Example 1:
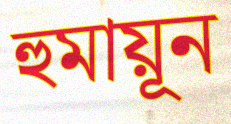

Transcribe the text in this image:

হুমায়ূন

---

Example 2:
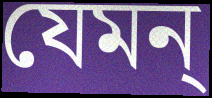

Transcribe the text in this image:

যেমন্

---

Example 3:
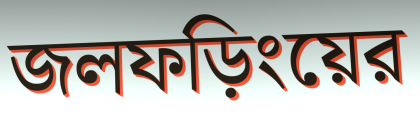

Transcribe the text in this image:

জলফড়িংয়ের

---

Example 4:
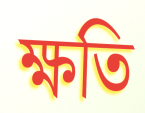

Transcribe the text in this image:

ক্ষতি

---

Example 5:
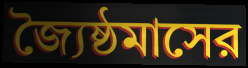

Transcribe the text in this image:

জ্যৈষ্ঠমাসের